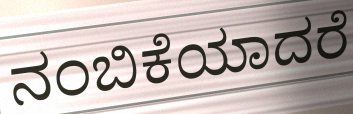
ನಂಬಿಕೆಯಾದರೆ